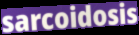
sarcoidosis